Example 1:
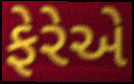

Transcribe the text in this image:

ફેરેએ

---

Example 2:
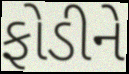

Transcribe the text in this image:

ફોડીને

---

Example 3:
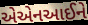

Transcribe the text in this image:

એએનઆઈને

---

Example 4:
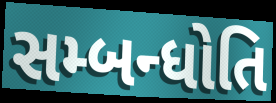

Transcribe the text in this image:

સમ્બન્ધોતિ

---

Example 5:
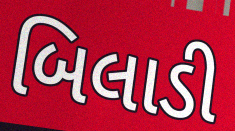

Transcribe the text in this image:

બિલાડી